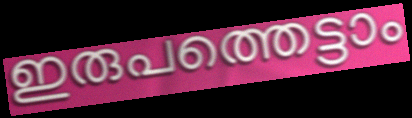
ഇരുപത്തെട്ടാം